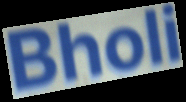
Bholi